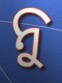
ନୁ